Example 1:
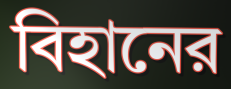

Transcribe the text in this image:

বিহানের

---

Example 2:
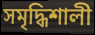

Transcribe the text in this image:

সমৃদ্ধিশালী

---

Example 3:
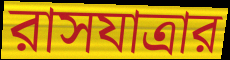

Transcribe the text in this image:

রাসযাত্রার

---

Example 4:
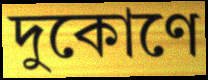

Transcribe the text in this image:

দুকোণে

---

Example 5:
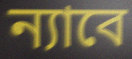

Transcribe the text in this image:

ন্যাবে